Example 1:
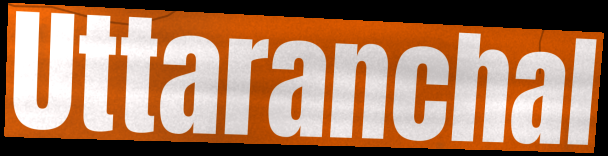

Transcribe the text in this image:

Uttaranchal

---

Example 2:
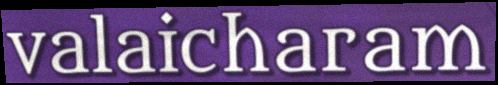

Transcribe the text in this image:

valaicharam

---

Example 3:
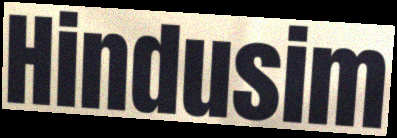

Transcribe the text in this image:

Hindusim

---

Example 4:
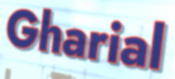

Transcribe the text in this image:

Gharial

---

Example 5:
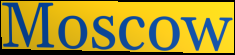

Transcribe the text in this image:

Moscow